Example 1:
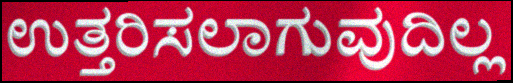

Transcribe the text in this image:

ಉತ್ತರಿಸಲಾಗುವುದಿಲ್ಲ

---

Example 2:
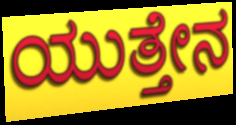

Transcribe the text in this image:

ಯುತ್ತೇನ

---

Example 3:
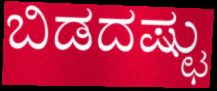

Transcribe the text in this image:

ಬಿಡದಷ್ಟು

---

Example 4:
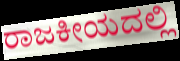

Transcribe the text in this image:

ರಾಜಕೀಯದಲ್ಲಿ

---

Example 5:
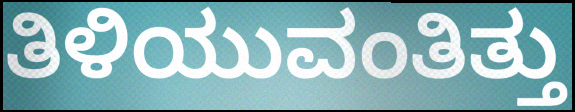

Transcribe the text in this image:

ತಿಳಿಯುವಂತಿತ್ತು